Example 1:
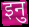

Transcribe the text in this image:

इनु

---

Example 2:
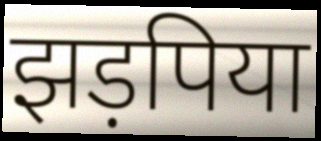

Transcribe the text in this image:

झड़पिया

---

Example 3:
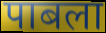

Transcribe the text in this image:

पाबला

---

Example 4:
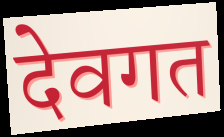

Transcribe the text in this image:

देवगत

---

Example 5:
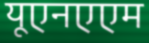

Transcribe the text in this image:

यूएनएएम